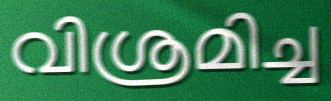
വിശ്രമിച്ച